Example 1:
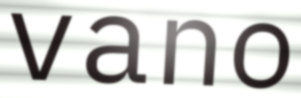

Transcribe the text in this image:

vano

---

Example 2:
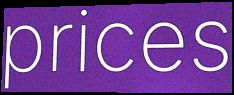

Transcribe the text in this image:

prices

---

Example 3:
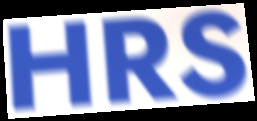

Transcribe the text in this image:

HRS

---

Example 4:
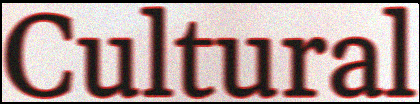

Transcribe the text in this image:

Cultural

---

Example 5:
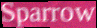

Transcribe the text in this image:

Sparrow